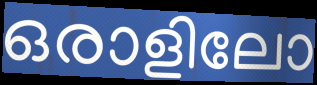
ഒരാളിലോ